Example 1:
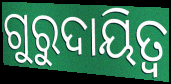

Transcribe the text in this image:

ଗୁରୁଦାୟିତ୍ଵ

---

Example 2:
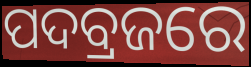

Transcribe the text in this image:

ପଦବ୍ରଜରେ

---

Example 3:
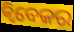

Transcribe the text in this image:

କ୍ୱିବେକର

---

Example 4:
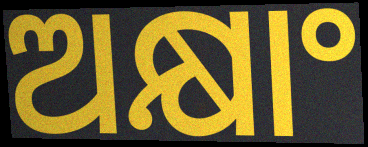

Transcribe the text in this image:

ଅକ୍ଷାଂ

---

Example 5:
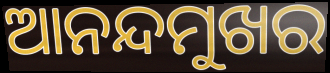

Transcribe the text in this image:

ଆନନ୍ଦମୁଖର